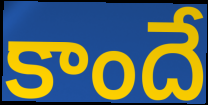
కాందే